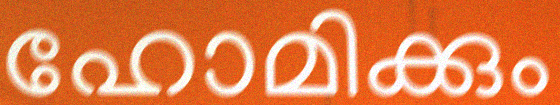
ഹോമിക്കും